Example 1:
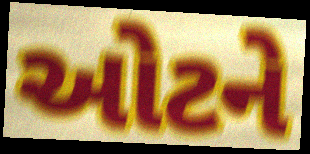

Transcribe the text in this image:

ઓટને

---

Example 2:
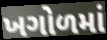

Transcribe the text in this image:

ખગોળમાં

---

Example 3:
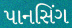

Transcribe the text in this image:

પાનસિંગ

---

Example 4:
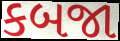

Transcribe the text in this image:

કબજા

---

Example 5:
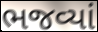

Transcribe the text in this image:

ભજવ્યાં